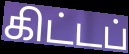
கிட்டப்